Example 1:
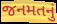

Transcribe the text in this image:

જનમતનું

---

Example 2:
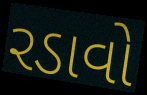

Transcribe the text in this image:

રડાવો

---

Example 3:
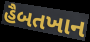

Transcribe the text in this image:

હૈબતખાન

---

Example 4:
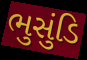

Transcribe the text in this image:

ભુસુંડિ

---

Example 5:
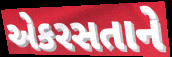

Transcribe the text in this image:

એકરસતાને